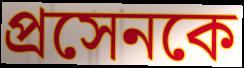
প্রসেনকে